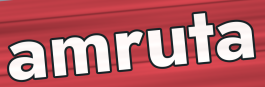
amruta